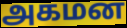
அகமன